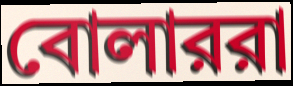
বোলাররা